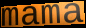
mama